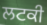
ਲਟਕੀ